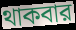
থাকবার